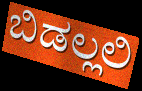
ಬಿಡಲ್ಲಲಿ